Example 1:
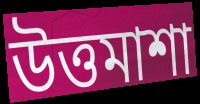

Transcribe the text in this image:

উত্তমাশা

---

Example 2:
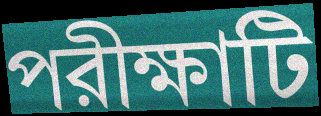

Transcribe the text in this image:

পরীক্ষাটি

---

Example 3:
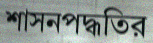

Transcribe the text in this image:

শাসনপদ্ধতির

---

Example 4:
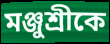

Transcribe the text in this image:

মঞ্জুশ্রীকে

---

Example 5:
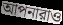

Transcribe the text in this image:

আপনারাও